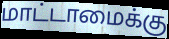
மாட்டாமைக்கு